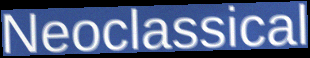
Neoclassical